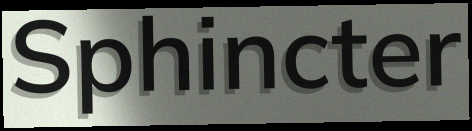
Sphincter